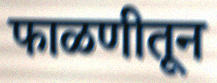
फाळणीतून